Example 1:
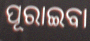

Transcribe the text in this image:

ପୂରାଇବା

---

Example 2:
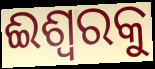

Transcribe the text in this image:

ଈଶ୍ୱରକୁ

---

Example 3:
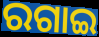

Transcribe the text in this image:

ରଗାଇ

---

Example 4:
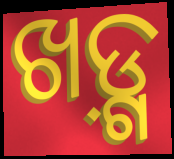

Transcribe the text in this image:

ଖଡ଼୍ଗ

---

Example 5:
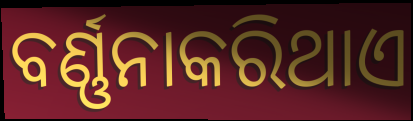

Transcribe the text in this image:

ବର୍ଣ୍ଣନାକରିଥାଏ